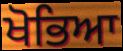
ਖੋਭਿਆ